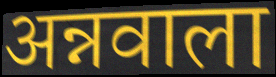
अन्नवाला